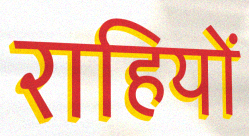
राहियों